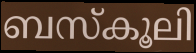
ബസ്കൂലി